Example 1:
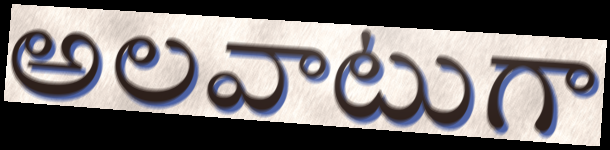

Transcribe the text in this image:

అలవాటుగా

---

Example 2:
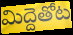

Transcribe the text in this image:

మిద్దెతోట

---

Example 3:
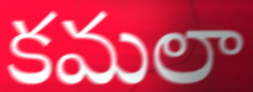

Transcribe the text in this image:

కమలా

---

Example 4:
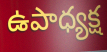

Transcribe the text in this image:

ఉపాధ్యక్ష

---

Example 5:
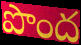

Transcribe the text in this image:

పొంద